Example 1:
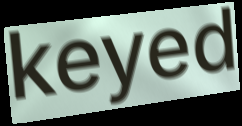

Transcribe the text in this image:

keyed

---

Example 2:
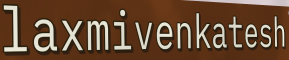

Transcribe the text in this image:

laxmivenkatesh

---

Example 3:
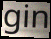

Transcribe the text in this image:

gin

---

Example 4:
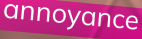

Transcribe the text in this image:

annoyance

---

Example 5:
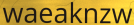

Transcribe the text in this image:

waeaknzw